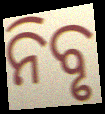
ନିବୃ